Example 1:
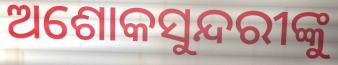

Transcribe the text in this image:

ଅଶୋକସୁନ୍ଦରୀଙ୍କୁ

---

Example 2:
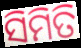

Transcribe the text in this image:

ସିମିତି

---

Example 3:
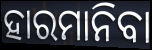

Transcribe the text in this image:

ହାରମାନିବା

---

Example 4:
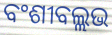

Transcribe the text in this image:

ବଂଶୀବଲ୍ଲଭ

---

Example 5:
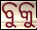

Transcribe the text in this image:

ବୁକୁ